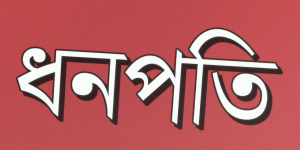
ধনপতি